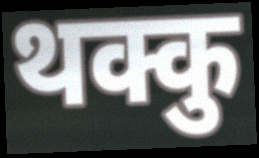
थक्कु